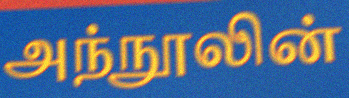
அந்நூலின்